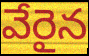
వేరైన